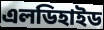
এলডিহাইড